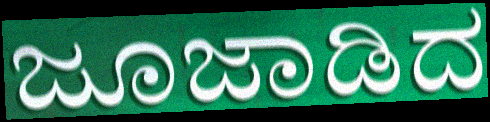
ಜೂಜಾಡಿದ